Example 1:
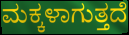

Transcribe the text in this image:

ಮಕ್ಕಳಾಗುತ್ತದೆ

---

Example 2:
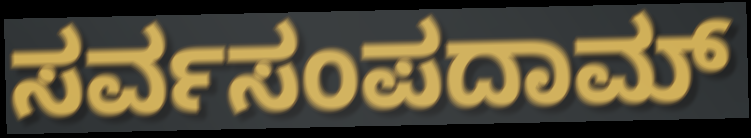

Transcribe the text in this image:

ಸರ್ವಸಂಪದಾಮ್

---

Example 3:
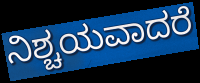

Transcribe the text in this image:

ನಿಶ್ಚಯವಾದರೆ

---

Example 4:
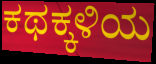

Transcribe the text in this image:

ಕಥಕ್ಕಳಿಯ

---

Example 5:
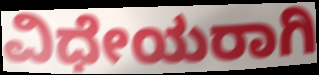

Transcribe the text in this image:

ವಿಧೇಯರಾಗಿ